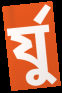
র্যু